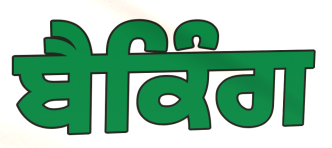
ਬੈਕਿੰਗ